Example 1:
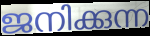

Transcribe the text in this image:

ജനിക്കുന്ന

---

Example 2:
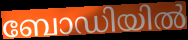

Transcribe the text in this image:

ബോഡിയിൽ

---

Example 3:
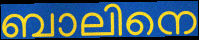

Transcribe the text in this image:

ബാലിനെ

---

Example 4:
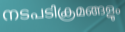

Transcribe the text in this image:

നടപടിക്രമങ്ങളും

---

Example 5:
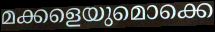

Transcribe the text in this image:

മക്കളെയുമൊക്കെ